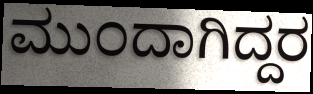
ಮುಂದಾಗಿದ್ದರ